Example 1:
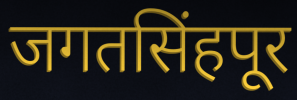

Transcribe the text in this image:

जगतसिंहपूर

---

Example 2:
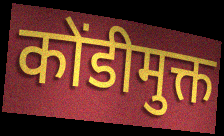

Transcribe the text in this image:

कोंडीमुक्त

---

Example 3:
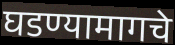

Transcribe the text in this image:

घडण्यामागचे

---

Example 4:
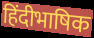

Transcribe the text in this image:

हिंदीभाषिक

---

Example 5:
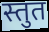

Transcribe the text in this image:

स्तुत